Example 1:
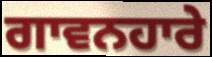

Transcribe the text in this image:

ਗਾਵਨਹਾਰੇ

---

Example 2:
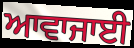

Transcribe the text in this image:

ਆਵਾਜਾਈ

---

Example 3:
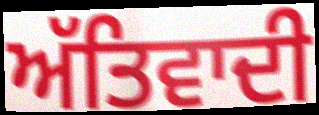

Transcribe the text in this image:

ਅੱਤਿਵਾਦੀ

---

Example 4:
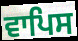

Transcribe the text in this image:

ਵਾਪਿਸ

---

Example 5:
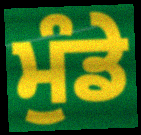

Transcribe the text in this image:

ਮੁੰਡੇ